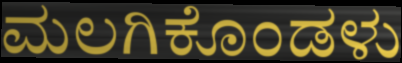
ಮಲಗಿಕೊಂಡಳು